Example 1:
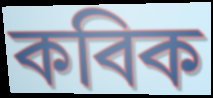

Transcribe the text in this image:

কবিক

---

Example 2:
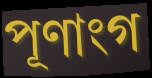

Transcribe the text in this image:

পূণাংগ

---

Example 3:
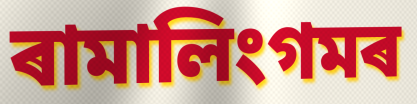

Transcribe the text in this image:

ৰামালিংগমৰ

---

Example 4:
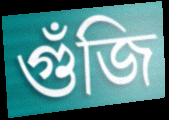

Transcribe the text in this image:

গুঁজি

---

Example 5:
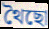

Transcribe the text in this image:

থৈছো